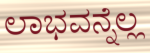
ಲಾಭವನ್ನೆಲ್ಲ